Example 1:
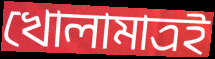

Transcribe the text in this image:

খোলামাত্রই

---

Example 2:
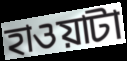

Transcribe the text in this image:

হাওয়াটা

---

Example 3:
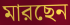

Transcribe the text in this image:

মারছেন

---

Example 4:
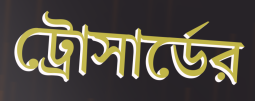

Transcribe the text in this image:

ট্রোসার্ডের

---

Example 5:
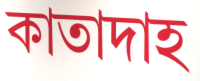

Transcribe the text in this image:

কাতাদাহ